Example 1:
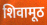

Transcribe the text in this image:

शिवामूठ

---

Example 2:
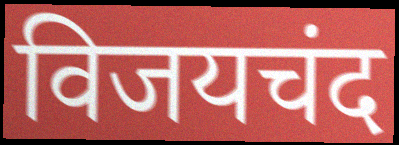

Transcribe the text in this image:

विजयचंद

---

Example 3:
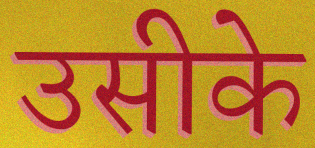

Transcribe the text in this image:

उसीके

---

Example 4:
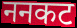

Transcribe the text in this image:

ननकट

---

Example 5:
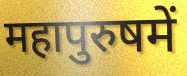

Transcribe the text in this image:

महापुरुषमें